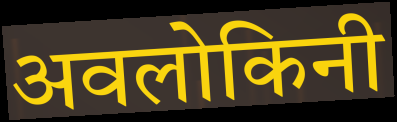
अवलोकिनी